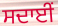
ਸਦਾਈਂ